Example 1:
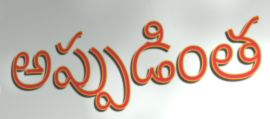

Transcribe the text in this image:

అప్పుడింత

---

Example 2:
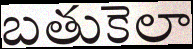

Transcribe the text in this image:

బతుకెలా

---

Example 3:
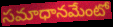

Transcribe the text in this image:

సమాధానమేంటో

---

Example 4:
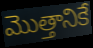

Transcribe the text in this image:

మొత్తానికే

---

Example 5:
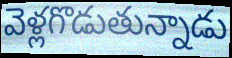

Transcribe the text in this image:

వెళ్లగొడుతున్నాడు